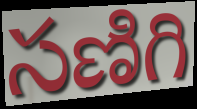
సణిగి